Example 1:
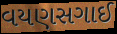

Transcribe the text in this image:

વયણસગાઈ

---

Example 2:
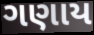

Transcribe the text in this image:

ગણાય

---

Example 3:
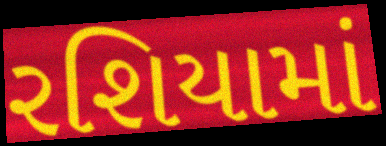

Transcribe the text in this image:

રશિયામાં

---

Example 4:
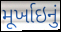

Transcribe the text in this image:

મૂર્ખાઇનું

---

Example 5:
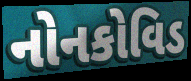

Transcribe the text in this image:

નોનકોવિડ